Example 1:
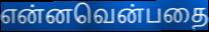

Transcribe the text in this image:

என்னவென்பதை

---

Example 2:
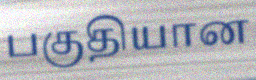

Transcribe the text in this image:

பகுதியான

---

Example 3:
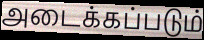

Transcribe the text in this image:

அடைக்கப்படும்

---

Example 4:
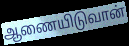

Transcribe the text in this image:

ஆணையிடுவான்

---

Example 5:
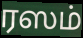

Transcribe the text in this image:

ரஸம்